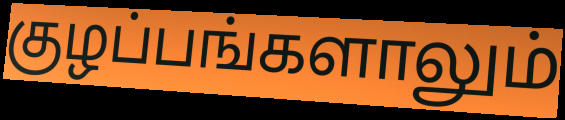
குழப்பங்களாலும்